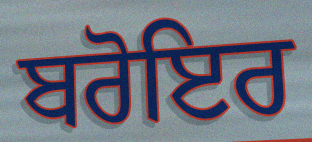
ਬਰੋਇਰ